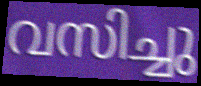
വസിച്ചു